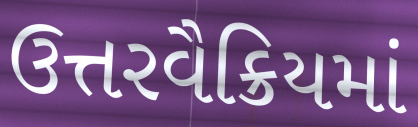
ઉત્તરવૈક્રિયમાં